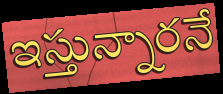
ఇస్తున్నారనే